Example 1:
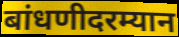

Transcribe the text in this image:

बांधणीदरम्यान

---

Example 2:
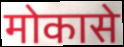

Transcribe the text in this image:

मोकासे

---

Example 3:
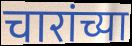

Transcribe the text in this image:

चारांच्या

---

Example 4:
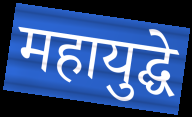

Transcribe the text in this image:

महायुद्घे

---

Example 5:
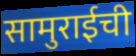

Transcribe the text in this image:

सामुराईची